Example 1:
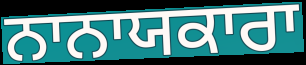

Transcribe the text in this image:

ਨਾਨਾਯਕਾਰਾ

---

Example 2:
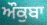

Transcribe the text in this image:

ਔਕੁਬਾ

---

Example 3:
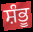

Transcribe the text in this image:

ਸ਼ੰਭੂ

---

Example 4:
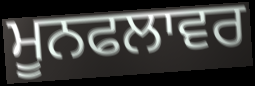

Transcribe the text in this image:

ਮੂਨਫਲਾਵਰ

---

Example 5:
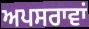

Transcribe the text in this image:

ਅਪਸਰਾਵਾਂ